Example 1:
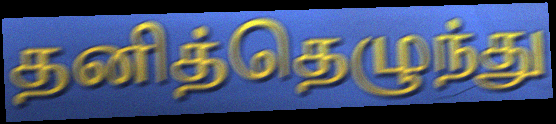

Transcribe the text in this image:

தனித்தெழுந்து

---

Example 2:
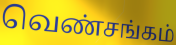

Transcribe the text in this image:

வெண்சங்கம்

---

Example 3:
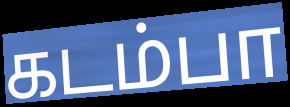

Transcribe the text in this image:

கடம்பா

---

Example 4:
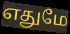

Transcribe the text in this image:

எதுமே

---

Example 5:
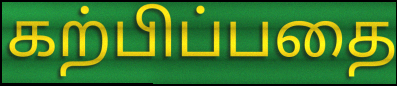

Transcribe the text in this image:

கற்பிப்பதை